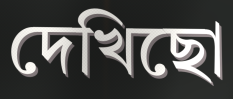
দেখিছো